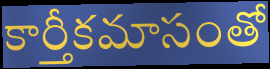
కార్తీకమాసంతో